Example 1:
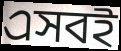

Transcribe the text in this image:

এসবই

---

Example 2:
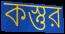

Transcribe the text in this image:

কস্তুর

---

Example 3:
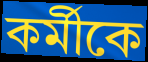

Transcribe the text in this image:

কর্মীকে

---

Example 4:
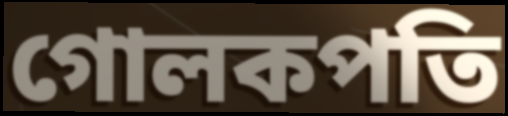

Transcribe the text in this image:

গোলকপতি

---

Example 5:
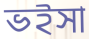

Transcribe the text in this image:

ভইসা